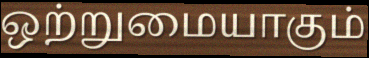
ஒற்றுமையாகும்